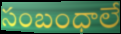
సంబంధాలే